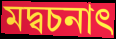
মদ্বচনাৎ